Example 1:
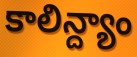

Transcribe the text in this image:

కాలిన్ద్యాం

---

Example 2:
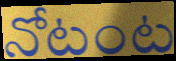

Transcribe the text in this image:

నోటంట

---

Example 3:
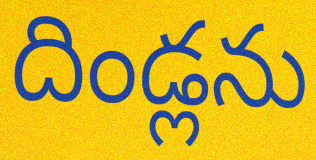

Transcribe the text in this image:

దిండ్లను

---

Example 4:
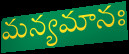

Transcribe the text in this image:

మన్యమానః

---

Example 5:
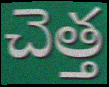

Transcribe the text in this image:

చెత్త